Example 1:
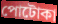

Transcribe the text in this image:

পোটোকা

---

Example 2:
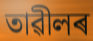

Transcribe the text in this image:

তাৱীলৰ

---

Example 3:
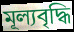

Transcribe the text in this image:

মূল্যবৃদ্ধি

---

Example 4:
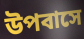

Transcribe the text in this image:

উপবাসে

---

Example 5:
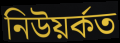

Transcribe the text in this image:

নিউয়ৰ্কত